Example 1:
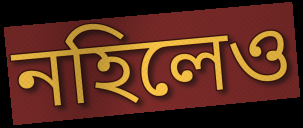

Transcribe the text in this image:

নহিলেও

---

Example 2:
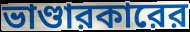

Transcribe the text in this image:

ভাণ্ডারকারের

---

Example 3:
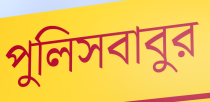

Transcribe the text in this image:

পুলিসবাবুর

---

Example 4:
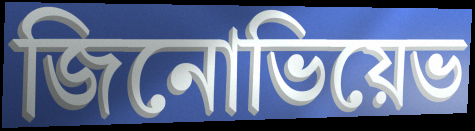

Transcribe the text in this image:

জিনোভিয়েভ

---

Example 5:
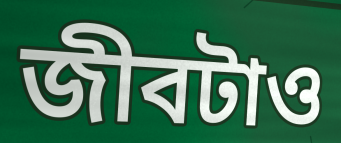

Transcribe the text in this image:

জীবটাও